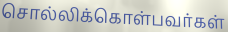
சொல்லிக்கொள்பவர்கள்